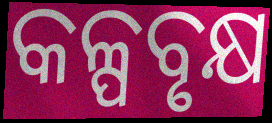
କଳ୍ପବୃକ୍ଷ